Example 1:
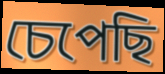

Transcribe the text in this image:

চেপেছি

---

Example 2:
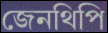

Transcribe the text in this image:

জেনথিপি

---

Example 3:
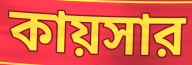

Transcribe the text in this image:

কায়সার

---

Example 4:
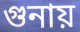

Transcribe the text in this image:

গুনায়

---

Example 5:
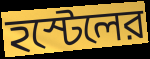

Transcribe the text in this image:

হস্টেলের